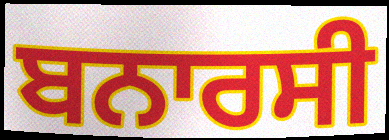
ਬਨਾਰਸੀ